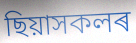
ছিয়াসকলৰ